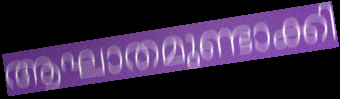
ആഘാതമുണ്ടാക്കി